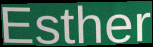
Esther